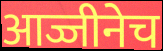
आज्जीनेच